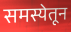
समस्येतून